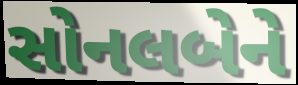
સોનલબેને